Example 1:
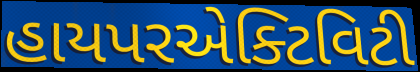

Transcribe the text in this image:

હાયપરએક્ટિવિટી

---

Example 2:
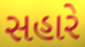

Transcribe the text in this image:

સહારે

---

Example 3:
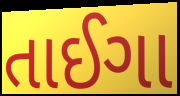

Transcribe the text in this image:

તાઈગા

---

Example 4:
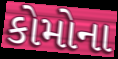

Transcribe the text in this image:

કોમોના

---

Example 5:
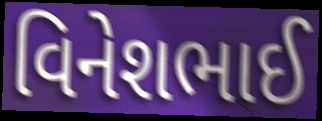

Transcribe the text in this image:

વિનેશભાઈ